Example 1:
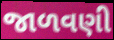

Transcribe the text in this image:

જાળવણી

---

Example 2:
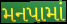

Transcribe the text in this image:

મનપામાં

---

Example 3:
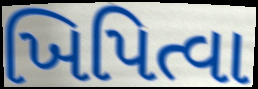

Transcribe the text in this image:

ખિપિત્વા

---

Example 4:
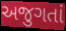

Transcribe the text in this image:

અજુગતાં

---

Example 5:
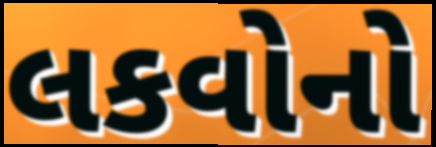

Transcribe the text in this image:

લકવોનો